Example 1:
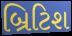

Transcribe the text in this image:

બ્રિટિશ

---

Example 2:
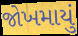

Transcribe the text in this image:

જોખમાયું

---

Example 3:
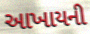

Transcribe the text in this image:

આખાયની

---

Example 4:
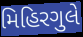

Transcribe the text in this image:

મિહિરગુલે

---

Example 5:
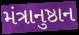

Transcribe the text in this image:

મંત્રાનુષ્ઠાન